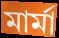
মার্মা